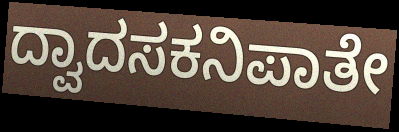
ದ್ವಾದಸಕನಿಪಾತೇ